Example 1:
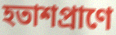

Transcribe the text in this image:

হতাশপ্রাণে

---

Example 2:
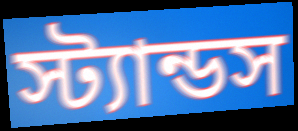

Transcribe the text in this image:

স্ট্যান্ডস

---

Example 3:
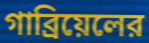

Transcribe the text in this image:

গাব্রিয়েলের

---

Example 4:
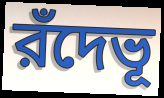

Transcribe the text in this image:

রঁদেভূ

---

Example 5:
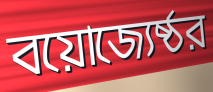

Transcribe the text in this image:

বয়োজ্যেষ্ঠর